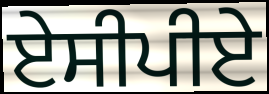
ਏਸੀਪੀਏ